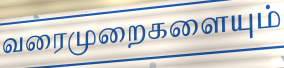
வரைமுறைகளையும்